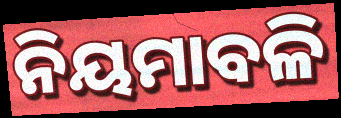
ନିୟମାବଳି